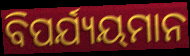
ବିପର୍ଯ୍ୟୟମାନ